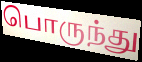
பொருந்து